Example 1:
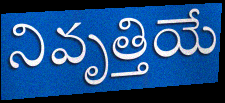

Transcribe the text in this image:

నివృత్తియే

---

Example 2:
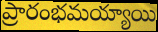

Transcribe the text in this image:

ప్రారంభమయ్యాయి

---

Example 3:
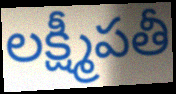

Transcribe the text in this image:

లక్ష్మీపతీ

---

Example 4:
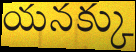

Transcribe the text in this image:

యనక్కు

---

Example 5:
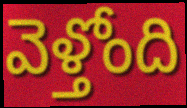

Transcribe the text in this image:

వెళ్తోంది